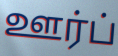
ஊர்ப்